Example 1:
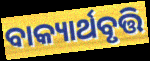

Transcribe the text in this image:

ବାକ୍ୟାର୍ଥବୃତ୍ତି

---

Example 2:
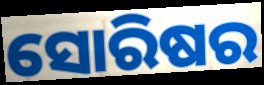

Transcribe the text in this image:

ସୋରିଷର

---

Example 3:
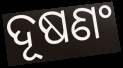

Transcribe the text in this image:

ଦୂଷଣଂ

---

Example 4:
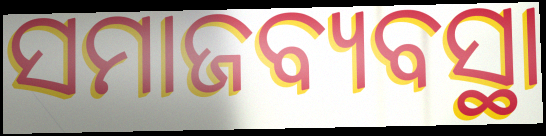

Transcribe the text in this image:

ସମାଜବ୍ୟବସ୍ଥା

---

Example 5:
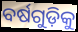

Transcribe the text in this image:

ବର୍ଷଗୁଡ଼ିକୁ